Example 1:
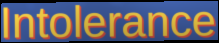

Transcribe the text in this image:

Intolerance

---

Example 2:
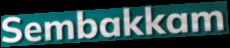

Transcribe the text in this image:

Sembakkam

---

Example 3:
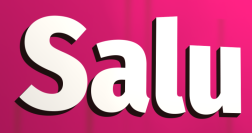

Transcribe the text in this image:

Salu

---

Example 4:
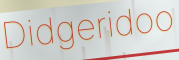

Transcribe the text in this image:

Didgeridoo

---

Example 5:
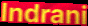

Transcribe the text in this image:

Indrani